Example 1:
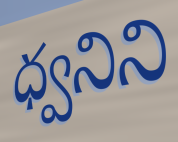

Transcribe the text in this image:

ధ్వనిని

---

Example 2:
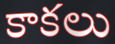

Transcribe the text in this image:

కాకలు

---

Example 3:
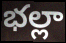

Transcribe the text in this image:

భల్లా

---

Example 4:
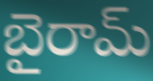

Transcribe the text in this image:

బైరామ్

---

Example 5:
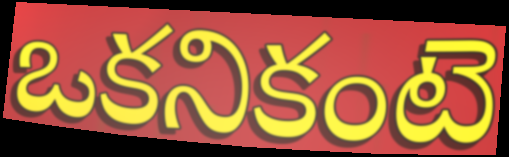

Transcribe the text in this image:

ఒకనికంటె